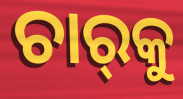
ଚାର୍‌କୁ